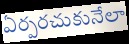
ఏర్పరచుకునేలా